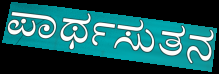
ಪಾರ್ಥಸುತನ